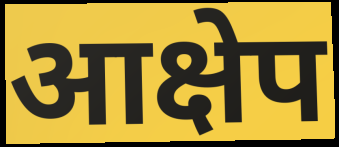
आक्षेप